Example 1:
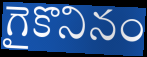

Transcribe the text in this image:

గైకొనినం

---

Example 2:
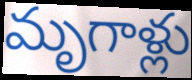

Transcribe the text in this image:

మృగాళ్లు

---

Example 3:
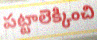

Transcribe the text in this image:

పట్టాలెక్కించి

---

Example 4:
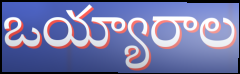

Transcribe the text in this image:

ఒయ్యారాల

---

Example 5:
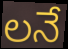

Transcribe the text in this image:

లనే